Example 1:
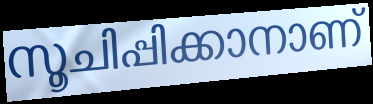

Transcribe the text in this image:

സൂചിപ്പിക്കാനാണ്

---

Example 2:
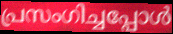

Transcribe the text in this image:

പ്രസംഗിച്ചപ്പോൾ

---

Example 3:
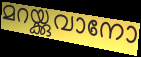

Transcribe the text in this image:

മറയ്ക്കുവാനോ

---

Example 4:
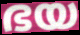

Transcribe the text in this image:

ഭയ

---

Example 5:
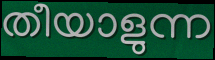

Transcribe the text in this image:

തീയാളുന്ന